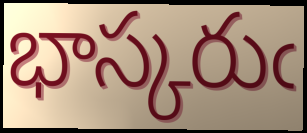
భాస్కరుఁ